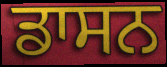
ਡਾਸਨ